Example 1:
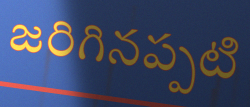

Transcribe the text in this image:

జరిగినప్పటి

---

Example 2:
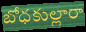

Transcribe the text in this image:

బోధకుల్లారా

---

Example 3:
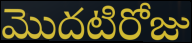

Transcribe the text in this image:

మొదటిరోజు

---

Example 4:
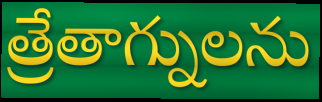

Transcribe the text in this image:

త్రేతాగ్నులను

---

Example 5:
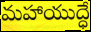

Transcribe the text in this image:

మహాయుద్ధే